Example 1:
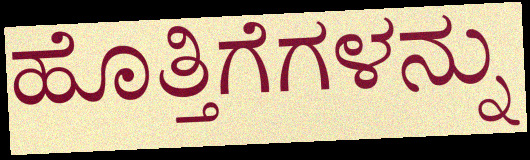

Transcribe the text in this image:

ಹೊತ್ತಿಗೆಗಳನ್ನು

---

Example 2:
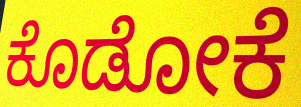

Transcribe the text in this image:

ಕೊಡೋಕೆ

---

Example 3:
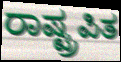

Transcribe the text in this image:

ರಾಷ್ಟ್ರಪಿತ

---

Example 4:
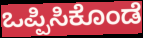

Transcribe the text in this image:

ಒಪ್ಪಿಸಿಕೊಂಡೆ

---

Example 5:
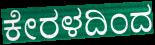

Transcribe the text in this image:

ಕೇರಳದಿಂದ